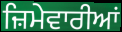
ਜ਼ਿਮੇਵਾਰੀਆਂ